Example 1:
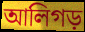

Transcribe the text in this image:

আলিগড়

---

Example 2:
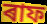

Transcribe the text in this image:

ৰাফ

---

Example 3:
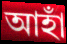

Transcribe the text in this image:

আহাঁ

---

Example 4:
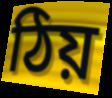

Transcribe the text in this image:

ঠিয়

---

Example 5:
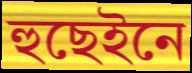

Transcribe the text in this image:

হুছেইনে